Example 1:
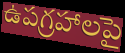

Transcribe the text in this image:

ఉపగ్రహాలపై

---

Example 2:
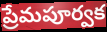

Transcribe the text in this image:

ప్రేమపూర్వక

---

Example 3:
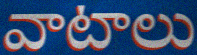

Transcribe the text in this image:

వాటాలు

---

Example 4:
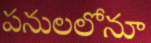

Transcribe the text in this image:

పనులలోనూ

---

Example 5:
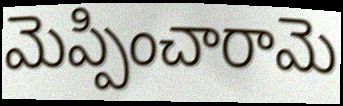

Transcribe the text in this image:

మెప్పించారామె